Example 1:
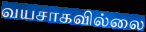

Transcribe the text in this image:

வயசாகவில்லை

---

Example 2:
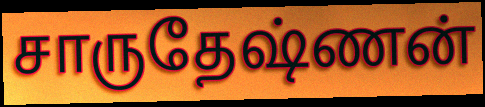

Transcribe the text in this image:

சாருதேஷ்ணன்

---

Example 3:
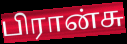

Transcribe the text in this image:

பிரான்சு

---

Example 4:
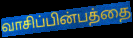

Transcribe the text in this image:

வாசிப்பின்பத்தை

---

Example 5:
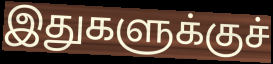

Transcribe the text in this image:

இதுகளுக்குச்